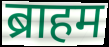
ब्राहम